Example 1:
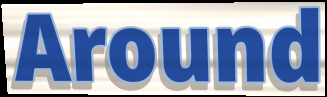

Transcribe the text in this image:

Around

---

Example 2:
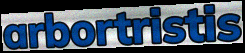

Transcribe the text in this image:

arbortristis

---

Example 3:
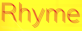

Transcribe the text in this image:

Rhyme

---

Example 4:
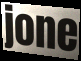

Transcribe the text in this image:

jone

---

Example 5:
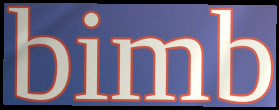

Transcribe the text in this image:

bimb